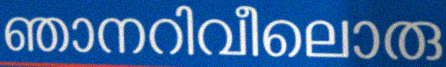
ഞാനറിവീലൊരു